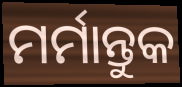
ମର୍ମାନ୍ତୁକ